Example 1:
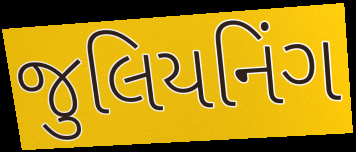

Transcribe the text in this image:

જુલિયનિંગ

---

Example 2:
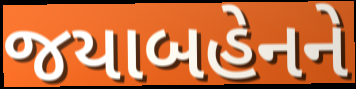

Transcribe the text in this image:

જયાબહેનને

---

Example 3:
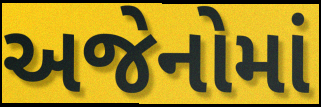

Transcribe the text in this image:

અજેનોમાં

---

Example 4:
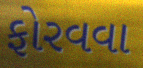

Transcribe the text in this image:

ફોરવવા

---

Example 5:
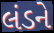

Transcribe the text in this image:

લંડને